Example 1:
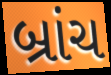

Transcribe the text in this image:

બ્રાંચ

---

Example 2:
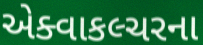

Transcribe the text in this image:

એક્વાકલ્ચરના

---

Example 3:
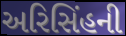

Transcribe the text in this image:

અરિસિંહની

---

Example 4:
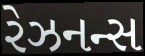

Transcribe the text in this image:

રેઝનન્સ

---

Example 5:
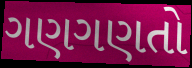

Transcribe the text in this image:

ગણગણતો